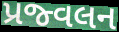
પ્રજ્વલન